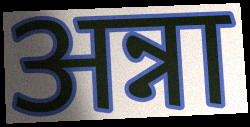
अन्ना